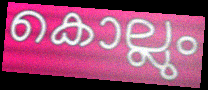
കൊല്ലും